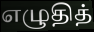
எழுதித்